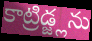
కాట్రిడ్జ్లను